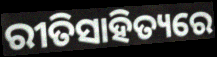
ରୀତିସାହିତ୍ୟରେ